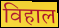
विहाल